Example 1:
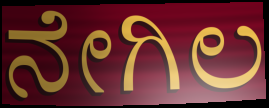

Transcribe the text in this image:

ನೇಗಿಲ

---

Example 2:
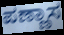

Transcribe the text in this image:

ಪಣ್ಣಾಸ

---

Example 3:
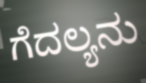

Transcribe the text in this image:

ಗೆದಲ್ಯನು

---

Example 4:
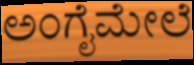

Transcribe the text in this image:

ಅಂಗೈಮೇಲೆ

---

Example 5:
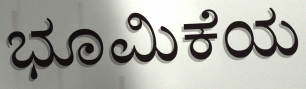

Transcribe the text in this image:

ಭೂಮಿಕೆಯ